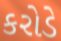
કરોડે